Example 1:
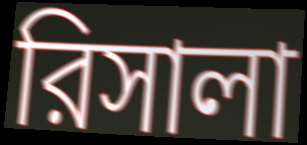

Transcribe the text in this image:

রিসালা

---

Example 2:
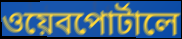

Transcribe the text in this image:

ওয়েবপোর্টালে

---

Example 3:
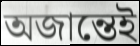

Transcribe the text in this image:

অজান্তেই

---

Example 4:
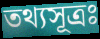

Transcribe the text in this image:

তথ্যসূত্রঃ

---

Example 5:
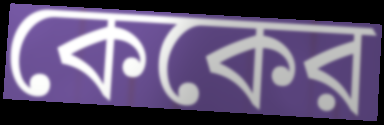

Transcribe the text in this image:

কেকের